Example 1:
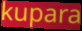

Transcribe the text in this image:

kupara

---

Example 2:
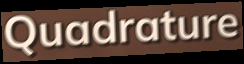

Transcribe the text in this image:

Quadrature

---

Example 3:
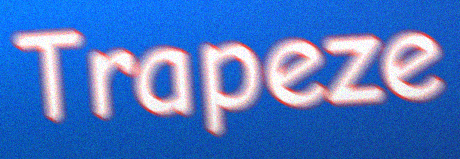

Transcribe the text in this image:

Trapeze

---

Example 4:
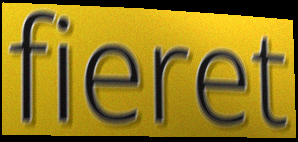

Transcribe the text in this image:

fieret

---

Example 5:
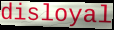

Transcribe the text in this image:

disloyal